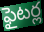
ఫైటర్ల